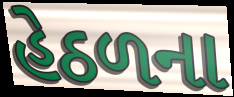
હેઠળના